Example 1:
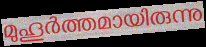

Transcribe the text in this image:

മുഹൂർത്തമായിരുന്നു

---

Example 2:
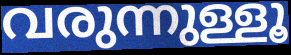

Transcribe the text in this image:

വരുന്നുള്ളൂ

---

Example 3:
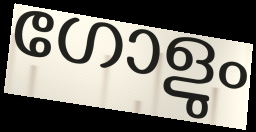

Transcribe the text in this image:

ഗോളും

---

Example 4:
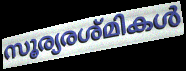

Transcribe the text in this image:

സൂര്യരശ്മികൾ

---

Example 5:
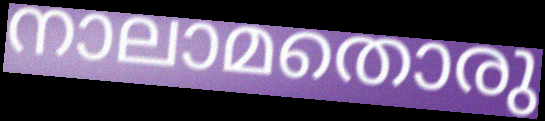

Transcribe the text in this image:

നാലാമതൊരു